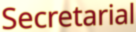
Secretarial